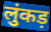
लुंकड़